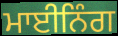
ਮਾਈਨਿੰਗ